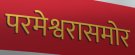
परमेश्वरासमोर